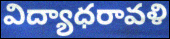
విద్యాధరావళి